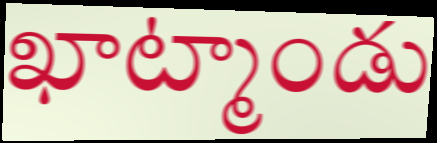
ఖాట్మాండు